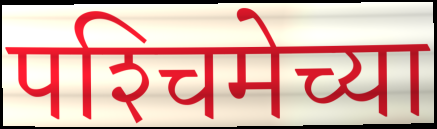
पश्चिमेच्या